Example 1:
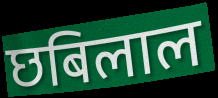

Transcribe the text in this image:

छबिलाल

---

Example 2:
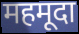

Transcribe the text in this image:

महमूदा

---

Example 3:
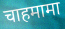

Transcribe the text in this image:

चाहमामा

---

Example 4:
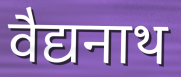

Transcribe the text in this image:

वैद्यनाथ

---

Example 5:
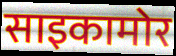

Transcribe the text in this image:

साइकामोर